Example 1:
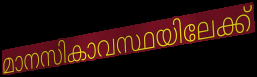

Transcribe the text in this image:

മാനസികാവസ്ഥയിലേക്ക്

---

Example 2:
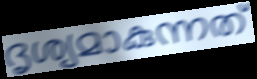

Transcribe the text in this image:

ദൃശ്യമാകുന്നത്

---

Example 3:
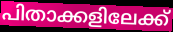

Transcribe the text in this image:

പിതാക്കളിലേക്ക്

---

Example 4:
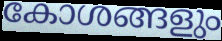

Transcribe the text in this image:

കോശങ്ങളും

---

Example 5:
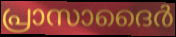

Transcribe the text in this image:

പ്രാസാദൈർ